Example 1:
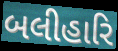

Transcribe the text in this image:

બલીહારિ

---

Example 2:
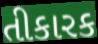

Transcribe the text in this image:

તીકારક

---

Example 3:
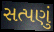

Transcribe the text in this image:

સત્પણું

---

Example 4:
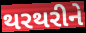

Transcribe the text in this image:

થરથરીને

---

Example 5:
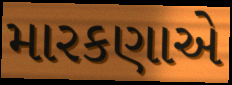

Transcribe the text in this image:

મારકણાએ